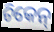
ଚିକେନ୍